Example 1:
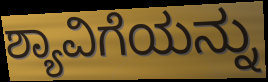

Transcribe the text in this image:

ಶ್ಯಾವಿಗೆಯನ್ನು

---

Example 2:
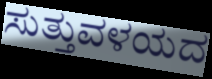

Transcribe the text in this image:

ಸುತ್ತುವಳಯದ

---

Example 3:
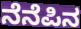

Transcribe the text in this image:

ನೆನೆಪಿನ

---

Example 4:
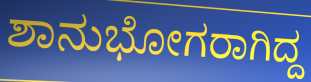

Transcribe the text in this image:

ಶಾನುಭೋಗರಾಗಿದ್ದ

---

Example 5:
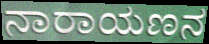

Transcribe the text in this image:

ನಾರಾಯಣನ